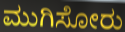
ಮುಗಿಸೋರು